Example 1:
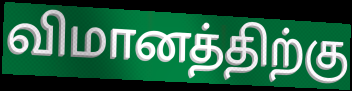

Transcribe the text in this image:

விமானத்திற்கு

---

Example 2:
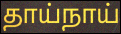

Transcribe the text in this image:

தாய்நாய்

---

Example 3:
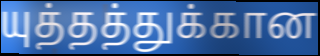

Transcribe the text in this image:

யுத்தத்துக்கான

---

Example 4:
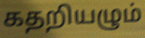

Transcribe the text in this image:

கதறியழும்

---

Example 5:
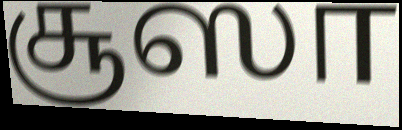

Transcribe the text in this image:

சூஸா